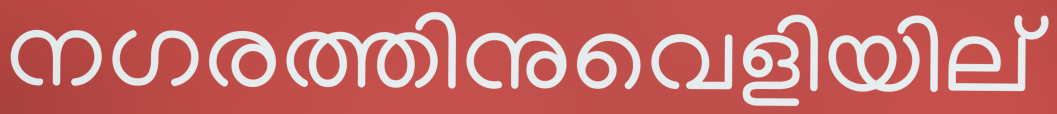
നഗരത്തിനുവെളിയില്